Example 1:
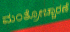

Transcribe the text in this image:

ಮಂತ್ರೋಚ್ಚಾರಣೆ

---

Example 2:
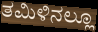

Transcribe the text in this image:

ತಮಿಳಿನಲ್ಲೂ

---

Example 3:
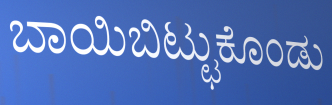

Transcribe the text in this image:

ಬಾಯಿಬಿಟ್ಟುಕೊಂಡು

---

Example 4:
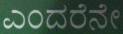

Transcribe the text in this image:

ಎಂದರೆನೇ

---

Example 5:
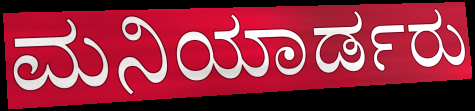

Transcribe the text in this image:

ಮನಿಯಾರ್ಡರು